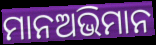
ମାନଅଭିମାନ